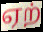
ஏற்